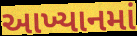
આખ્યાનમાં